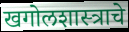
खगोलशास्त्राचे